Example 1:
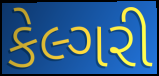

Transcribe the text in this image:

કેલ્ગરી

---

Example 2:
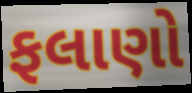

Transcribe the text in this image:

ફલાણો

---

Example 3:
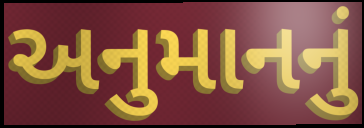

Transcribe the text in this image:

અનુમાનનું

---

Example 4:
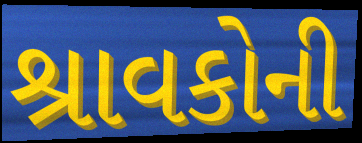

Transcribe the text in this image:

શ્રાવકોની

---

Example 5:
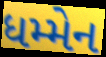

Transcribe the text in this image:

ધમ્મેન